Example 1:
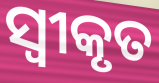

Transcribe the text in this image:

ସ୍ଵୀକୃତ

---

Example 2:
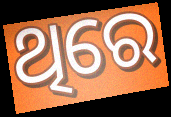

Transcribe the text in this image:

ଥିରେ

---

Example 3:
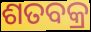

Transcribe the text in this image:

ଶତବକ୍ର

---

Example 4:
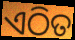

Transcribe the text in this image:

ଏଠିତ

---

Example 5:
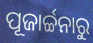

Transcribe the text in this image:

ପୂଜାର୍ଚ୍ଚନାରୁ